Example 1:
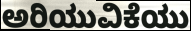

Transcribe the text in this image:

ಅರಿಯುವಿಕೆಯು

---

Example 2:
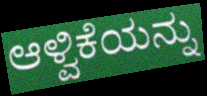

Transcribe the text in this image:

ಆಳ್ವಿಕೆಯನ್ನು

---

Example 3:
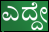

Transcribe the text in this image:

ಎದ್ದೇ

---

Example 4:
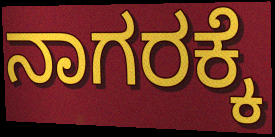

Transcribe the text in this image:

ನಾಗರಕ್ಕೆ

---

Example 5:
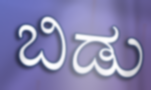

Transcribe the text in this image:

ಬಿಡು